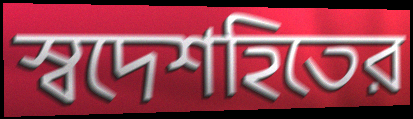
স্বদেশহিতের